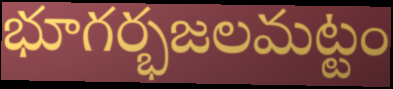
భూగర్భజలమట్టం